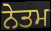
ਨੇਤਮ